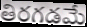
తిరగడమే